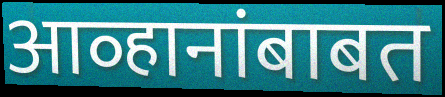
आव्हानांबाबत